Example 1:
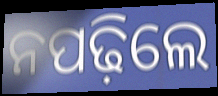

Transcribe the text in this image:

ନପଢ଼ିଲେ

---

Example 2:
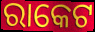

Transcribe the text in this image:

ରାକେଟ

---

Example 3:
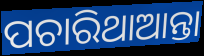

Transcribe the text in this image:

ପଚାରିଥାଆନ୍ତା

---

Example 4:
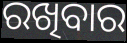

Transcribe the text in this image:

ରଖିବାର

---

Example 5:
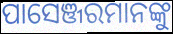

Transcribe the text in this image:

ପାସେଞ୍ଜରମାନଙ୍କୁ